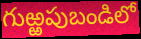
గుఱ్ఱపుబండిలో